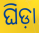
ଘିଡ଼ା